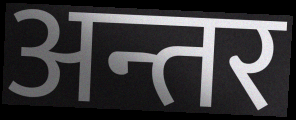
अन्तर